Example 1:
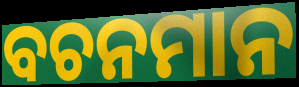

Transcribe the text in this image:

ବଚନମାନ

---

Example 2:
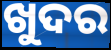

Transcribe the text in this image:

ଖୁଦର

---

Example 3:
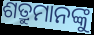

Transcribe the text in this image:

ଶତ୍ରୁମାନଙ୍କୁ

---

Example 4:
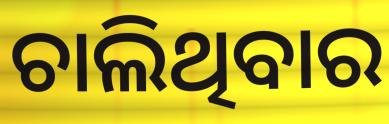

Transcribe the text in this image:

ଚାଲିଥିବାର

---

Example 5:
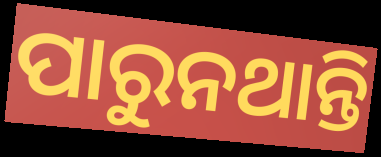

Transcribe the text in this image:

ପାରୁନଥାନ୍ତି